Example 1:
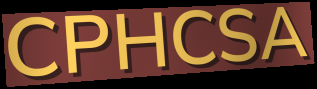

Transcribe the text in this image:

CPHCSA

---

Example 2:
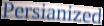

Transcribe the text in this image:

Persianized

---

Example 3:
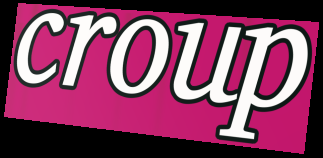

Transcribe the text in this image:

croup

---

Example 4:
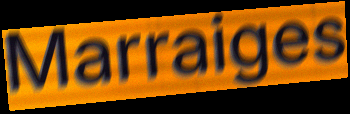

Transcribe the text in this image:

Marraiges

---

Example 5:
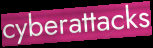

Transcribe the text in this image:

cyberattacks